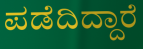
ಪಡೆದಿದ್ದಾರೆ